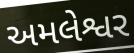
અમલેશ્વર